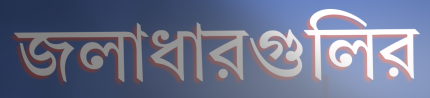
জলাধারগুলির